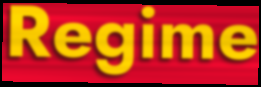
Regime